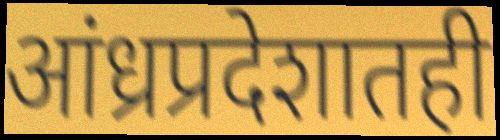
आंध्रप्रदेशातही